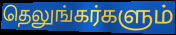
தெலுங்கர்களும்